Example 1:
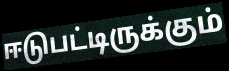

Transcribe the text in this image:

ஈடுபட்டிருக்கும்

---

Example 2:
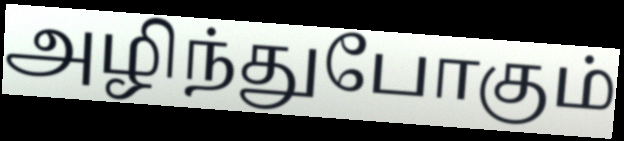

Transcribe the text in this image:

அழிந்துபோகும்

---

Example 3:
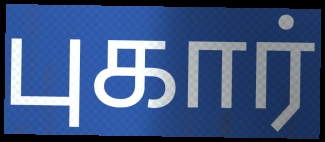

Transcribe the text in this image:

புகார்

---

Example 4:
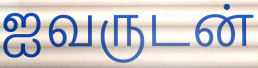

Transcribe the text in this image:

ஐவருடன்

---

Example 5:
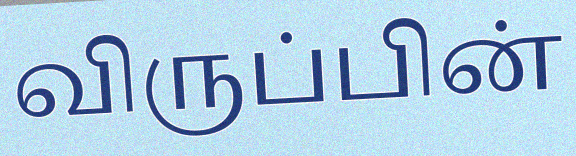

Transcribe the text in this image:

விருப்பின்